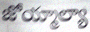
జోయ్మాల్యా